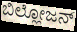
ಬಿಲ್ಲೋಜನ್